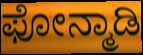
ಫೋನ್ಮಾಡಿ